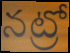
నట్రో